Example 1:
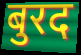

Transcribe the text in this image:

बुरद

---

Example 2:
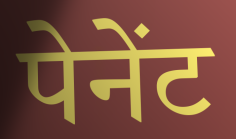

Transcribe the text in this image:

पेनेंट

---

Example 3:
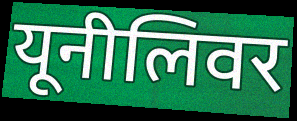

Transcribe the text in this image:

यूनीलिवर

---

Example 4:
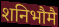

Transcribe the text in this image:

शनिभौमै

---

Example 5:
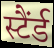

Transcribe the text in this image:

स्टैंर्ड